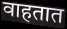
वाहतात